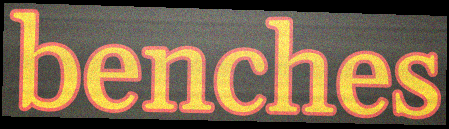
benches